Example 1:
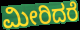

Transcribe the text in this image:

ಮೀರಿದರೆ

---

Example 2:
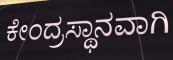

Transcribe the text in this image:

ಕೇಂದ್ರಸ್ಥಾನವಾಗಿ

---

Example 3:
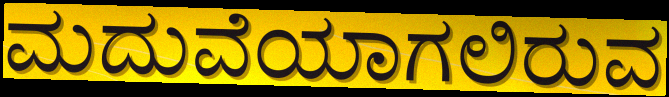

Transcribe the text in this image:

ಮದುವೆಯಾಗಲಿರುವ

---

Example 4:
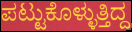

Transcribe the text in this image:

ಪಟ್ಟುಕೊಳ್ಳುತ್ತಿದ್ದ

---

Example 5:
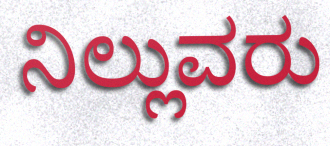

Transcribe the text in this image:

ನಿಲ್ಲುವರು